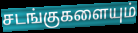
சடங்குகளையும்